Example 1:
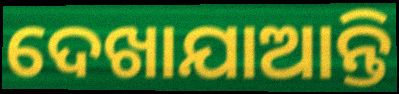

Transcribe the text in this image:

ଦେଖାଯାଆନ୍ତି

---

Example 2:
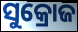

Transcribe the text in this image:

ସୁକ୍ରୋଜ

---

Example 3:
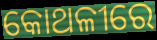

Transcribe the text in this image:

କୋଥଳୀରେ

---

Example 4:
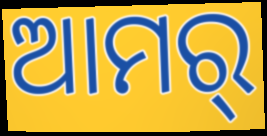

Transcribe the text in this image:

ଆମର୍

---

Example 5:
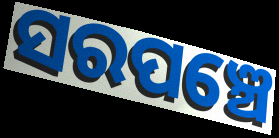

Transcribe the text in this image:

ସରପଞ୍ଚେ